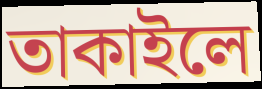
তাকাইলে